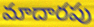
మాదారపు